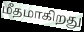
மீதமாகிறது